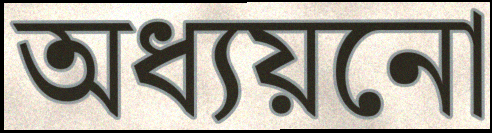
অধ্যয়নো